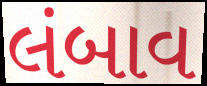
લંબાવ